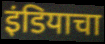
इंडियाचा